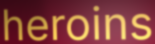
heroins